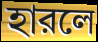
হারলে